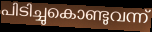
പിടിച്ചുകൊണ്ടുവന്ന്